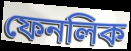
ফেনলিক